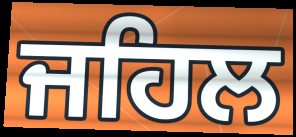
ਜਹਿਲ